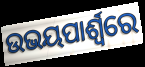
ଉଭୟପାର୍ଶ୍ବରେ